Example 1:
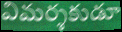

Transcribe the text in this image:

విమర్శకుడూ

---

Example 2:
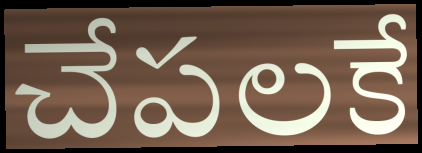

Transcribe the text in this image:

చేపలకే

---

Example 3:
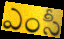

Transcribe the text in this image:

ఎంసీ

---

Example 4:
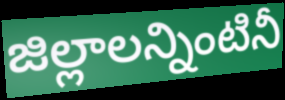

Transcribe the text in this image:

జిల్లాలన్నింటినీ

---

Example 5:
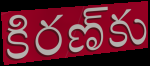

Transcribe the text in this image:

కిరణ్‌కు